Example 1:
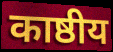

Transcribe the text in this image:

काष्ठीय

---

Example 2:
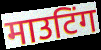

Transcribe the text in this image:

माउटिंग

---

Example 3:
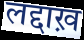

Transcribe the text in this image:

लद्दाख़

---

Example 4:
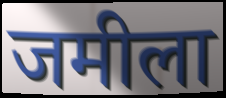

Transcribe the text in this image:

जमीला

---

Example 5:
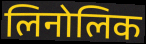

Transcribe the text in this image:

लिनोलिक